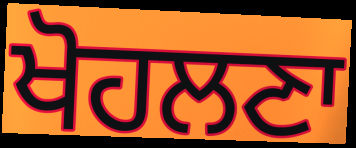
ਖੋਹਲਣਾ